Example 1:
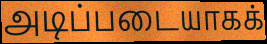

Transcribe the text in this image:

அடிப்படையாகக்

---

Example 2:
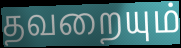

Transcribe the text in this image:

தவறையும்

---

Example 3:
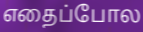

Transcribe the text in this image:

எதைப்போல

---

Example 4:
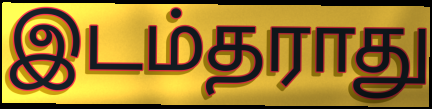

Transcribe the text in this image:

இடம்தராது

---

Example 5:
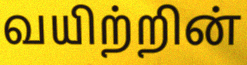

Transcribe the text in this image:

வயிற்றின்